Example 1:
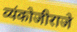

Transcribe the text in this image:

व्यंकोजीराजे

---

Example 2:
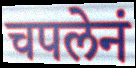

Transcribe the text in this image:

चपलेनं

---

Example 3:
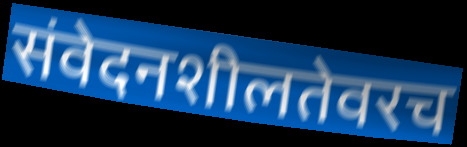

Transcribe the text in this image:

संवेदनशीलतेवरच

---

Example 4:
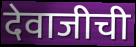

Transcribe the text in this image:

देवाजीची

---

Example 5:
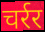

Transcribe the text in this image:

चर्रर